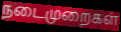
நடைமுறைகள்